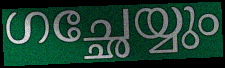
ഗച്ഛേയ്യും